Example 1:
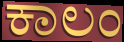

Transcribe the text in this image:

ಕಾಲಂ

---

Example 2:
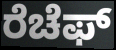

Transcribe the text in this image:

ರೆಚೆಫ್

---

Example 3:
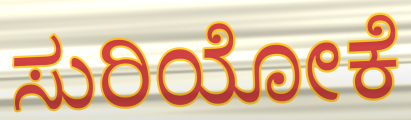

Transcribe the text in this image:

ಸುರಿಯೋಕೆ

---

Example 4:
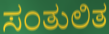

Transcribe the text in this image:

ಸಂತುಲಿತ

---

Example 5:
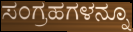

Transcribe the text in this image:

ಸಂಗ್ರಹಗಳನ್ನೂ